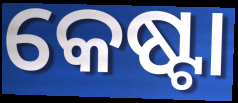
କେଷ୍ଟା